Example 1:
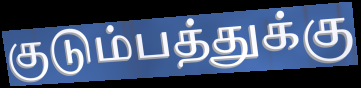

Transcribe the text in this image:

குடும்பத்துக்கு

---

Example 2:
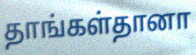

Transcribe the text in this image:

தாங்கள்தானா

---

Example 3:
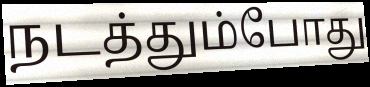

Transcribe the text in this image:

நடத்தும்போது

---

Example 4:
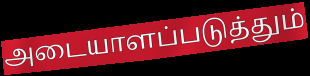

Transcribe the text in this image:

அடையாளப்படுத்தும்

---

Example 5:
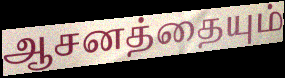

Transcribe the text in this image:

ஆசனத்தையும்